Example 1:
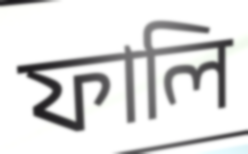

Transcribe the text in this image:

ফালি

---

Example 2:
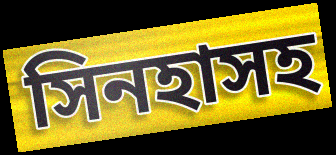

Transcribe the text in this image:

সিনহাসহ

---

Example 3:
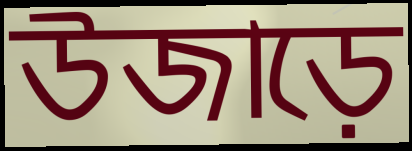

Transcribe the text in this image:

উজাড়ে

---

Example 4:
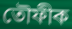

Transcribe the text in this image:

তৌফীক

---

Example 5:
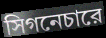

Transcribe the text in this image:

সিগনেচারে